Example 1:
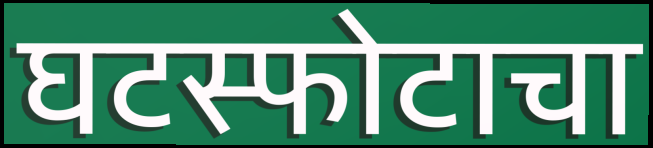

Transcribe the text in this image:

घटस्फोटाचा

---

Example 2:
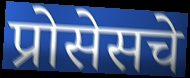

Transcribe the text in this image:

प्रोसेसचे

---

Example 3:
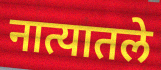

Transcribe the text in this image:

नात्यातले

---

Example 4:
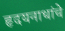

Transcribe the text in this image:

हृदयनाथांचे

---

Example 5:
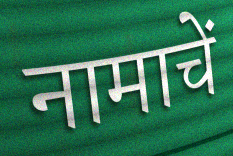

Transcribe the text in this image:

नामाचें